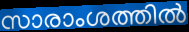
സാരാംശത്തിൽ